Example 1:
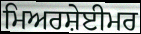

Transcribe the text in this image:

ਮਿਅਰਸ਼ੇਈਮਰ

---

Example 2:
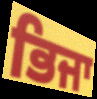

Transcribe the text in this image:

ਭਿਜਾ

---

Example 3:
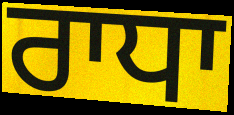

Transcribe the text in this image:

ਰਾਧਾ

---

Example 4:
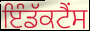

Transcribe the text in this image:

ਇੰਡੱਕਟੈਂਸ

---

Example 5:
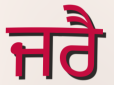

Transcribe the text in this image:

ਜਰੈ